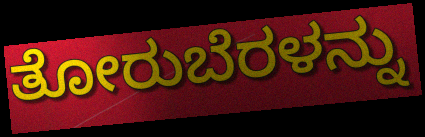
ತೋರುಬೆರಳನ್ನು